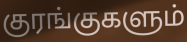
குரங்குகளும்